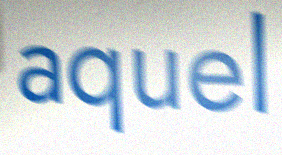
aquel